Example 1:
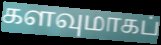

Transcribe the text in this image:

களவுமாகப்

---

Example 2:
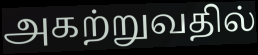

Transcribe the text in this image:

அகற்றுவதில்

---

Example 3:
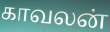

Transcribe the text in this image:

காவலன்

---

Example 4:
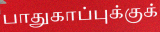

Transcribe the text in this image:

பாதுகாப்புக்குக்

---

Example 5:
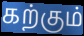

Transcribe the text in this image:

கற்கும்